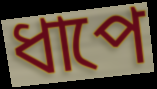
ধাপে